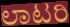
ಲಾಟರಿ